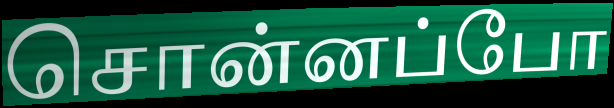
சொன்னப்போ